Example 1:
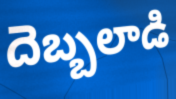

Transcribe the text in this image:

దెబ్బలాడి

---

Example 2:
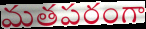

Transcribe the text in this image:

మతపరంగా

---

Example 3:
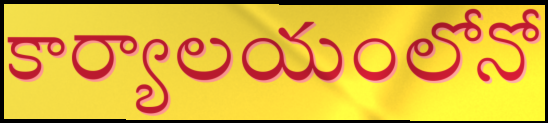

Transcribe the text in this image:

కార్యాలయంలోనో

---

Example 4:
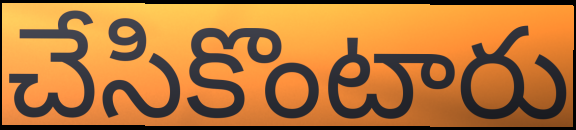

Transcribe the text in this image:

చేసికొంటారు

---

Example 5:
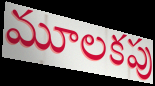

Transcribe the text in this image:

మూలకపు